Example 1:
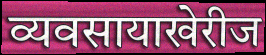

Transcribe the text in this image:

व्यवसायाखेरीज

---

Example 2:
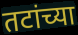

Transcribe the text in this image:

तटांच्या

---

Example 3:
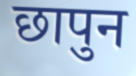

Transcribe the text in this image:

छापुन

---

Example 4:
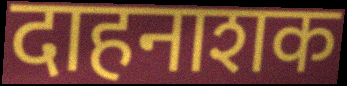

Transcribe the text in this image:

दाहनाशक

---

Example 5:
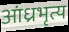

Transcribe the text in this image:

आंध्रभृत्य